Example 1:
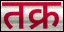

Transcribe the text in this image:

तक्र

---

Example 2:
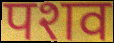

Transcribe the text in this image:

पशव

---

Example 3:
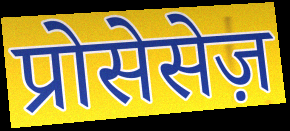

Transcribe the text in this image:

प्रोसेसेज़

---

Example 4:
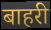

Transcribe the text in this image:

बाहरी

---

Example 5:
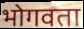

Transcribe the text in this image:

भोगवता